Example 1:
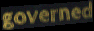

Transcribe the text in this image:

governed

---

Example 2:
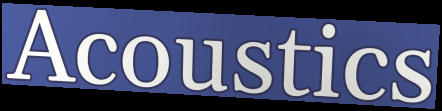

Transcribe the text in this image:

Acoustics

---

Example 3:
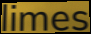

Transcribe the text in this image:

limes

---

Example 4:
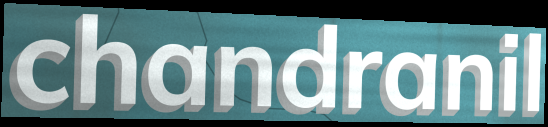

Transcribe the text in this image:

chandranil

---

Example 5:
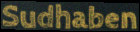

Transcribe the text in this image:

Sudhaben